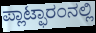
ಪ್ಲಾಟ್ಫಾರಂನಲ್ಲಿ